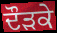
ਦੌੜਕੇ